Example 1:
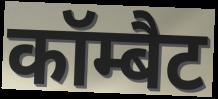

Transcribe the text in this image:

कॉम्बैट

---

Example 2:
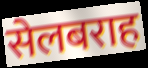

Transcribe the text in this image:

सेलबराह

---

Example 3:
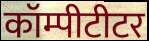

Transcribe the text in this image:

कॉम्पीटीटर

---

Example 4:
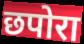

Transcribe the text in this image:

छपोरा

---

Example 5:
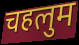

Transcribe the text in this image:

चहलुम